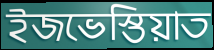
ইজভেস্তিয়াত